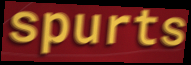
spurts